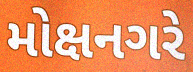
મોક્ષનગરે